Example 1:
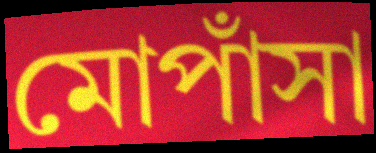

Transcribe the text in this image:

মোপাঁসা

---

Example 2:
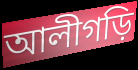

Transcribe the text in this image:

আলীগড়ি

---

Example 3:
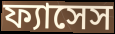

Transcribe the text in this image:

ফ্যাসেস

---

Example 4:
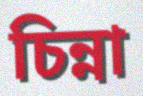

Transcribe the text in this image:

চিন্না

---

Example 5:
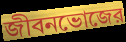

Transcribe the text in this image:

জীবনভোজের